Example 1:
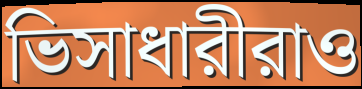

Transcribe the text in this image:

ভিসাধারীরাও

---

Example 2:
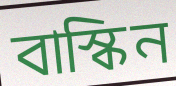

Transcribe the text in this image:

বাস্কিন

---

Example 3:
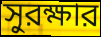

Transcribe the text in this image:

সুরক্ষার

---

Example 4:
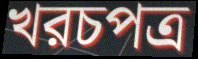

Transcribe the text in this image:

খরচপত্র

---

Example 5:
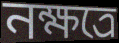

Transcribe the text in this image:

নক্ষত্রে